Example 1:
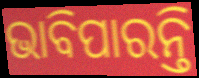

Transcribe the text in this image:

ଭାବିପାରନ୍ତି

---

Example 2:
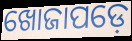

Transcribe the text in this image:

ଖୋଜାପଡ଼େ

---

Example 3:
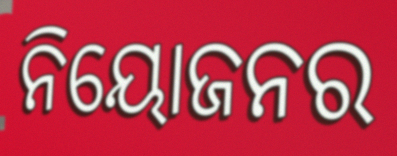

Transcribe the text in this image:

ନିୟୋଜନର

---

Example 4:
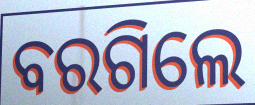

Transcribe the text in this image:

ବରଗିଲେ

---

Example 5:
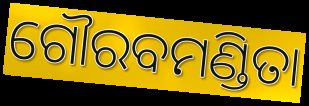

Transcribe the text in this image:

ଗୌରବମଣ୍ଡିତା